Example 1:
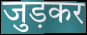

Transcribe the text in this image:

जुड़कर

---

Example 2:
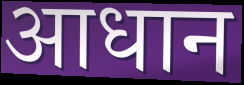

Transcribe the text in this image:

आधान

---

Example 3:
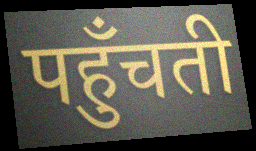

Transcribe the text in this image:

पहुँचती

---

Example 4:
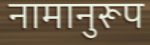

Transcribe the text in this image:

नामानुरूप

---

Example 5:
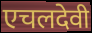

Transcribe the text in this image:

एचलदेवी